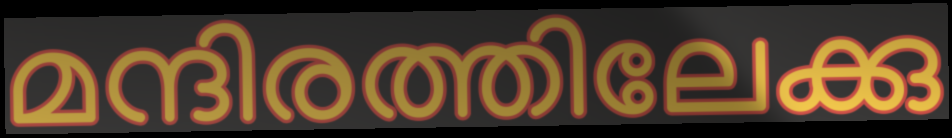
മന്ദിരത്തിലേക്കു